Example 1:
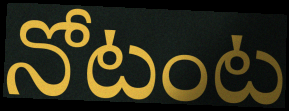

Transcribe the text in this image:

నోటంట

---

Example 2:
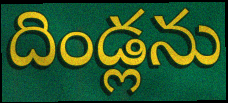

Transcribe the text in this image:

దిండ్లను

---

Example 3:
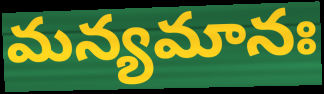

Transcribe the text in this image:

మన్యమానః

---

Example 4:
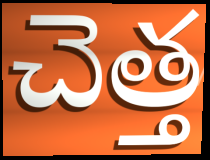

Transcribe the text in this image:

చెత్త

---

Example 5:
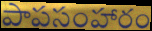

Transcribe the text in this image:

పాపసంహారం